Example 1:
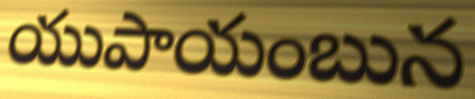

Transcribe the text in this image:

యుపాయంబున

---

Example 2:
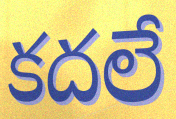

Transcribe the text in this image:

కదలే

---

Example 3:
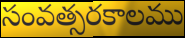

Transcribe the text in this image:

సంవత్సరకాలము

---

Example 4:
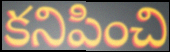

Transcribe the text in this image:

కనిపించి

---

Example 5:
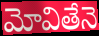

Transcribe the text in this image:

మోవితేనె